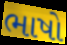
ભાષો